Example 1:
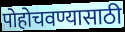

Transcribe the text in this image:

पोहोचवण्यासाठी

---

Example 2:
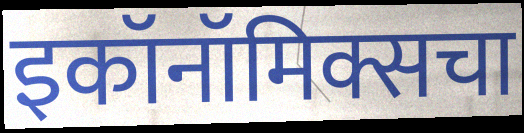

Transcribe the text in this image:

इकॉनॉमिक्सचा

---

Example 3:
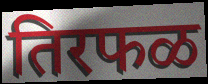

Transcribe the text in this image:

तिरफळ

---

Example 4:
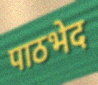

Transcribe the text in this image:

पाठभेद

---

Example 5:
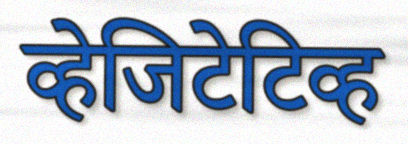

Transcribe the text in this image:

व्हेजिटेटिव्ह